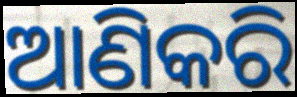
ଆଣିକରି